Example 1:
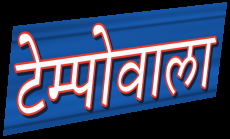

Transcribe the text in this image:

टेम्पोवाला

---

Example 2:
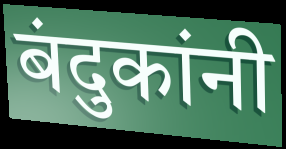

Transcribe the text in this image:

बंदुकांनी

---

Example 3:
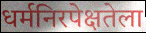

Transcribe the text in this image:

धर्मनिरपेक्षतेला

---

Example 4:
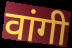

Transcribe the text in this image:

वांगी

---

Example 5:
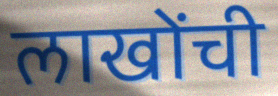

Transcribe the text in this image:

लाखोंची